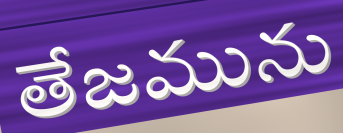
తేజమును